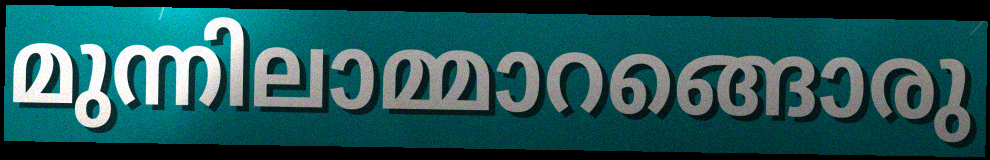
മുന്നിലാമ്മാറങ്ങൊരു